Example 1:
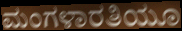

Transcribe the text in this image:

ಮಂಗಳಾರತಿಯೂ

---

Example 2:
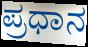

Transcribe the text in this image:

ಪ್ರಧಾನ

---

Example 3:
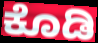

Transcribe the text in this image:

ಕೊಡಿ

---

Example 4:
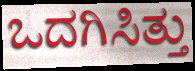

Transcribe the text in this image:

ಒದಗಿಸಿತ್ತು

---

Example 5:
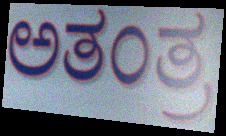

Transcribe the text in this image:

ಅತಂತ್ರ